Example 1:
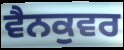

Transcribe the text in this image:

ਵੈਨਕੁਵਰ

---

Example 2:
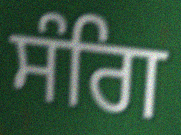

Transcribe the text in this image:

ਸੰਗਿ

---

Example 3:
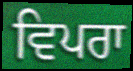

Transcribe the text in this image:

ਵਿਪਰਾ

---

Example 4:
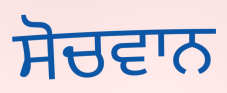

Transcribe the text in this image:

ਸੋਚਵਾਨ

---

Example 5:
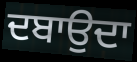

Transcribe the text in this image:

ਦਬਾਉਦਾ